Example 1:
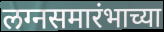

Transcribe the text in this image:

लग्नसमारंभाच्या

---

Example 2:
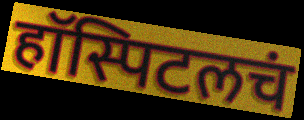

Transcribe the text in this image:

हॉस्पिटलचं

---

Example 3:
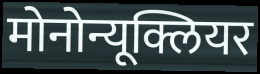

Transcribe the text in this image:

मोनोन्यूक्लियर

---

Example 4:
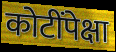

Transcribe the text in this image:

कोटींपेक्षा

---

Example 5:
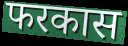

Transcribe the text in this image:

फरकास